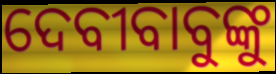
ଦେବୀବାବୁଙ୍କୁ